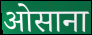
ओसाना